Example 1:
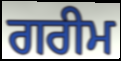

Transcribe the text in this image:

ਗਰੀਮ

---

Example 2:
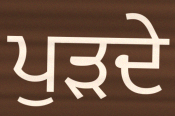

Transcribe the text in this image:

ਪੁੜਦੇ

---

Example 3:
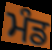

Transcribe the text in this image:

ਮੰਡ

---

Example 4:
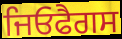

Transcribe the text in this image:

ਜਿਓਫੈਗਸ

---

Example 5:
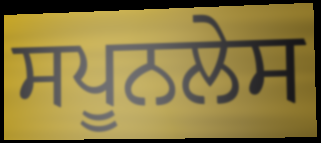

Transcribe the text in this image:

ਸਪੂਨਲੇਸ